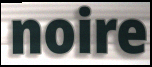
noire